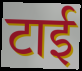
टाई